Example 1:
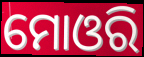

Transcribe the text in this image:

ମୋଓରି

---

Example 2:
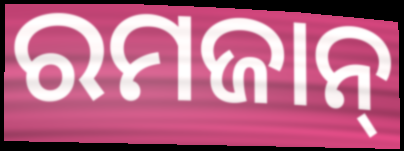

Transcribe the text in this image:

ରମଜାନ୍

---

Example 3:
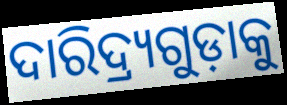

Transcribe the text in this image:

ଦାରିଦ୍ର୍ୟଗୁଡ଼ାକୁ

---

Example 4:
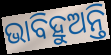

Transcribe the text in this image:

ଭାବିହୁଅନ୍ତି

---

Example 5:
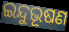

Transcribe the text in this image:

ଇନ୍ଦୁଭୂଷଣ